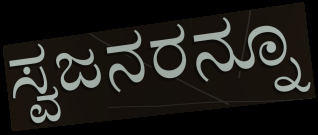
ಸ್ವಜನರನ್ನೂ